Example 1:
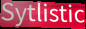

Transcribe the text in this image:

Sytlistic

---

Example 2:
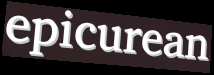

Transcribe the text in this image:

epicurean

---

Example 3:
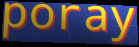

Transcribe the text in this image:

poray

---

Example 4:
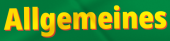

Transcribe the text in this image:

Allgemeines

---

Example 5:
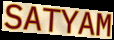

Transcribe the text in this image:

SATYAM